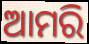
ଆମରି